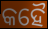
କହୈ